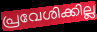
പ്രവേശിക്കില്ല